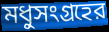
মধুসংগ্রহের